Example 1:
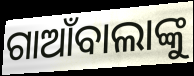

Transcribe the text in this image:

ଗାଆଁବାଲାଙ୍କୁ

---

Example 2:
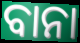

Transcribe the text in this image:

ବାନା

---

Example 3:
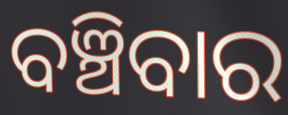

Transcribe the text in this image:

ବଞ୍ଚିବାର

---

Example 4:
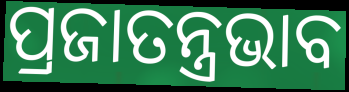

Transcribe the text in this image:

ପ୍ରଜାତନ୍ତ୍ରଭାବ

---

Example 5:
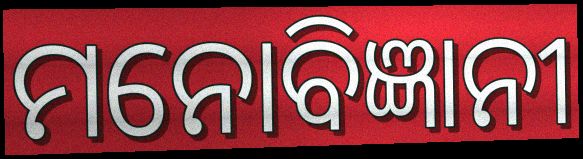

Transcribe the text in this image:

ମନୋବିଜ୍ଞାନୀ